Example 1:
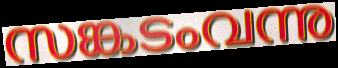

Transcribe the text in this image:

സങ്കടംവന്നു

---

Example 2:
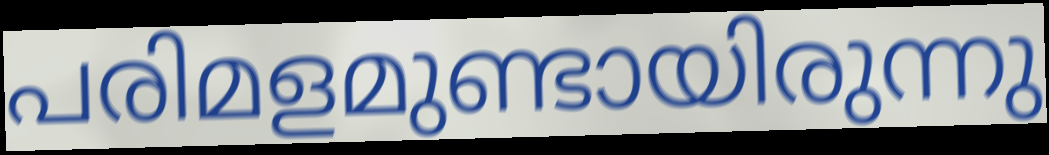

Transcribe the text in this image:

പരിമളമുണ്ടായിരുന്നു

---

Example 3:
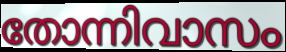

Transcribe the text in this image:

തോന്നിവാസം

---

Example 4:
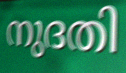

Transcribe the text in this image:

നുദതി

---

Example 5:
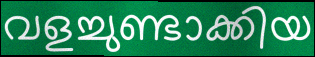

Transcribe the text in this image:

വളച്ചുണ്ടാക്കിയ